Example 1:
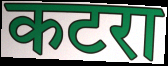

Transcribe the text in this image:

कटरा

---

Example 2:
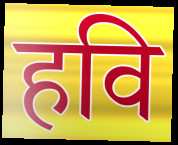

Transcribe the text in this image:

हवि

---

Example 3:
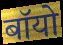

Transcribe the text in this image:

बॉयो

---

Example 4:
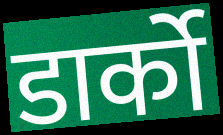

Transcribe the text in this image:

डार्को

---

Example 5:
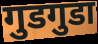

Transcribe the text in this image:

गुडगुडा